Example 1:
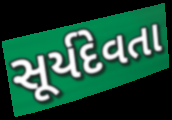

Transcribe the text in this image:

સૂર્યદેવતા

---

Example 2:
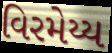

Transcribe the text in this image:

વિરમેય્ય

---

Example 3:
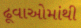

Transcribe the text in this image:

ઢૂવાઓમાંથી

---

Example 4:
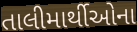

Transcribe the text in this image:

તાલીમાર્થીઓના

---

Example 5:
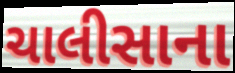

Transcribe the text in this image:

ચાલીસાના